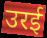
उरई